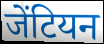
जेंटियन